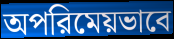
অপরিমেয়ভাবে